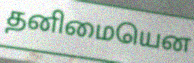
தனிமையென